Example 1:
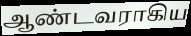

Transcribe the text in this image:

ஆண்டவராகிய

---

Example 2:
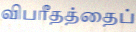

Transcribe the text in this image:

விபரீதத்தைப்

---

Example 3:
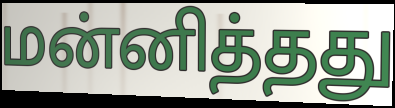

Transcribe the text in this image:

மன்னித்தது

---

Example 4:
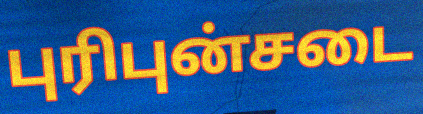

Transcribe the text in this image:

புரிபுன்சடை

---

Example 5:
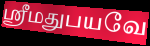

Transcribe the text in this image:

ஸ்ரீமதுபயவே